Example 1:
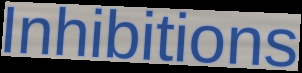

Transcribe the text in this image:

Inhibitions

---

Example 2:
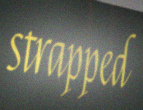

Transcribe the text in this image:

strapped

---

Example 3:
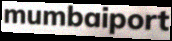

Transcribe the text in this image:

mumbaiport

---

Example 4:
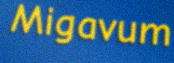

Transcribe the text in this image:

Migavum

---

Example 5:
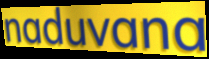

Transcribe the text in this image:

naduvana